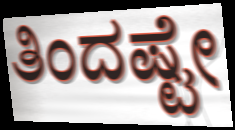
ತಿಂದಷ್ಟೇ